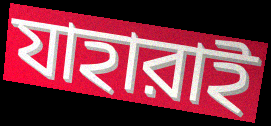
যাহারাই